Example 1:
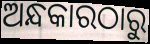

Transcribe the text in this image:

ଅନ୍ଧକାରଠାରୁ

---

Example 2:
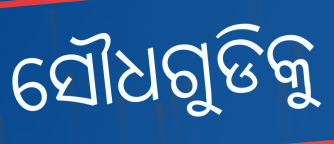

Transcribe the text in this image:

ସୌଧଗୁଡିକୁ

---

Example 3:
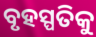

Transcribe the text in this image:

ବୃହସ୍ପତିକୁ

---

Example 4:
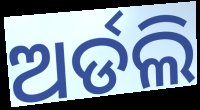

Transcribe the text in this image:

ଅର୍ଡଲି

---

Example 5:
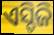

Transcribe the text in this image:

ଏସ୍ଡିଜି